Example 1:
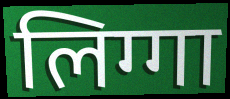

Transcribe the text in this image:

लिग्गा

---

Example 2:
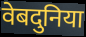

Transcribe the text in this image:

वेबदुनिया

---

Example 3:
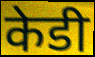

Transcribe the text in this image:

केडी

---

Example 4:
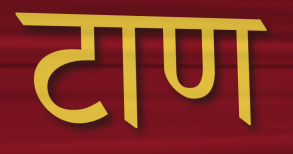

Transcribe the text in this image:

टाण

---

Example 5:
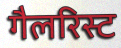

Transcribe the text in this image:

गैलरिस्ट